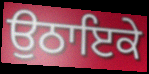
ਉਠਾਇਕੇ